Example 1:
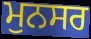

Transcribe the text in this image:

ਮੁਨਸਰ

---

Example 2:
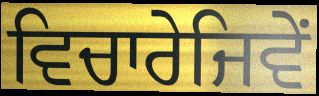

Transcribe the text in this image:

ਵਿਚਾਰੇਜਿਵੇਂ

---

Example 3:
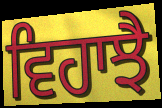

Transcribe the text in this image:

ਵਿਹਾਝੈ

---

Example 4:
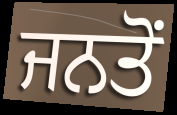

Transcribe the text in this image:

ਜਨਤੋਂ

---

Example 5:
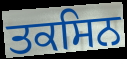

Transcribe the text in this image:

ਤਕਸਿਨ